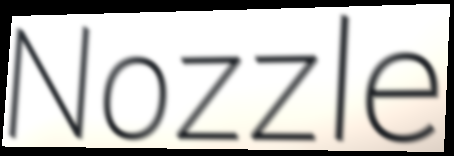
Nozzle